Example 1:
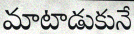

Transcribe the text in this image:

మాటాడుకునే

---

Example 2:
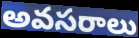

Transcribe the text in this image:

అవసరాలు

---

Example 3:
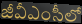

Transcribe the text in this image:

జీవీఎంసీలో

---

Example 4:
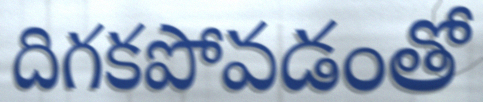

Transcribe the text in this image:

దిగకపోవడంతో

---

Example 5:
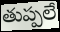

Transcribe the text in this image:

తుప్పలే